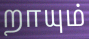
றாயும்